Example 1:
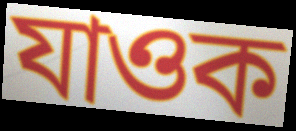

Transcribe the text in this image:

যাওক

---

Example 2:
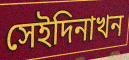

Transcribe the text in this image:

সেইদিনাখন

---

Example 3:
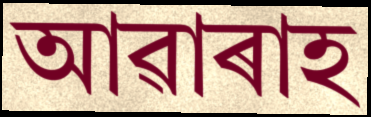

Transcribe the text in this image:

আৱাৰাহ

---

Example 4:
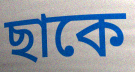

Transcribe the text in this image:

ছাকে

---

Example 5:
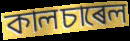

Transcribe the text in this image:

কালচাৰেল